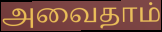
அவைதாம்